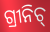
ଗ୍ରୀନିଚ୍